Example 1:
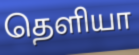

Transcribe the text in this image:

தெளியா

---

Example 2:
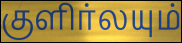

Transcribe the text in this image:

குளிர்லயும்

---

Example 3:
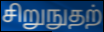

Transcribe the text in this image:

சிறுநுதற்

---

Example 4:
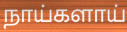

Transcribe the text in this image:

நாய்களாய்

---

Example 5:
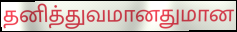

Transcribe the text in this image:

தனித்துவமானதுமான